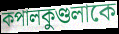
কপালকুণ্ডলাকে